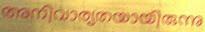
അനിവാര്യതയായിരുന്നു